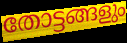
തോട്ടങ്ങളും